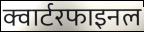
क्वार्टरफाइनल